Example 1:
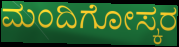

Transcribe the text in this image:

ಮಂದಿಗೋಸ್ಕರ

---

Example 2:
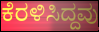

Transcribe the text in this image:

ಕೆರಳಿಸಿದ್ದವು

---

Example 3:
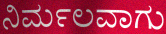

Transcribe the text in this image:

ನಿರ್ಮಲವಾಗು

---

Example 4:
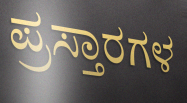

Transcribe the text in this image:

ಪ್ರಸ್ತಾರಗಳ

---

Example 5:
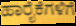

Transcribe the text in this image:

ಹಾರೈಕೆಗಳಿಗೆ